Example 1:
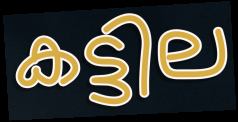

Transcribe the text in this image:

കട്ടില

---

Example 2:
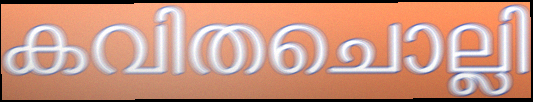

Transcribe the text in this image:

കവിതചൊല്ലി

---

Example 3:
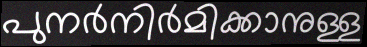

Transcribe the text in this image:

പുനർനിർമിക്കാനുള്ള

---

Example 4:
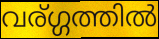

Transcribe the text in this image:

വര്ഗ്ഗത്തിൽ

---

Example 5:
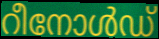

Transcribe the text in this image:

റീനോൾഡ്